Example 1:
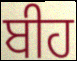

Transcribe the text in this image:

ਬੀਹ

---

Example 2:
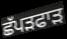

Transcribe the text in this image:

ਛੱਪੜਫਾੜ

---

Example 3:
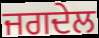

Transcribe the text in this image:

ਜਗਦੇਲ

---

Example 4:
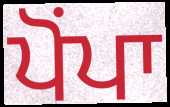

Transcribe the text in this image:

ਪੋਂਪਾ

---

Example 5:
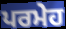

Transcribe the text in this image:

ਪਰਮੇਹ